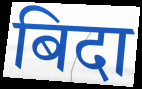
बिदा